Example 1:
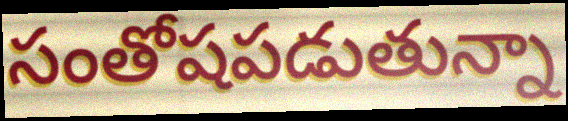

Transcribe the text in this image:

సంతోషపడుతున్నా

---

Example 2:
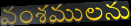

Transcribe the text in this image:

వంశములను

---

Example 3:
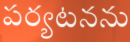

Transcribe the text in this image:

పర్యటనను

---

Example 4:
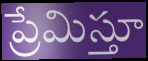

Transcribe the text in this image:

ప్రేమిస్తూ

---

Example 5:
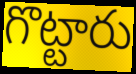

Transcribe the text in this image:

గొట్టారు